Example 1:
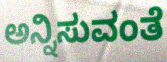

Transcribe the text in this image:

ಅನ್ನಿಸುವಂತೆ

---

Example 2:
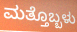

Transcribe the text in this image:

ಮತ್ತೊಬ್ಬಳು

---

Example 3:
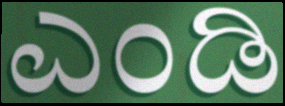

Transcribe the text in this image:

ಎಂಡಿ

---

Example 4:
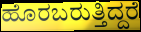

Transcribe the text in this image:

ಹೊರಬರುತ್ತಿದ್ದರೆ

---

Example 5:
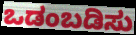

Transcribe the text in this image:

ಒಡಂಬಡಿಸು